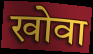
खोवा